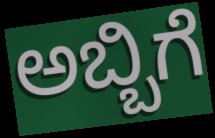
ಅಬ್ಬಿಗೆ